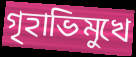
গৃহাভিমুখে